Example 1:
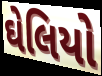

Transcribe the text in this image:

ઘેલિયો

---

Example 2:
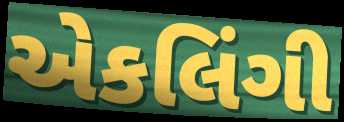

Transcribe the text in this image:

એકલિંગી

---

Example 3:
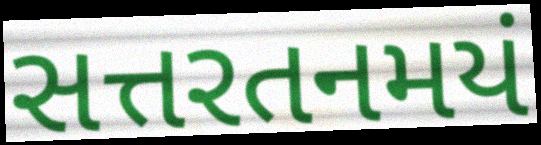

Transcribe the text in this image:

સત્તરતનમયં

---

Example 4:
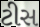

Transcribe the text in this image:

ટીસ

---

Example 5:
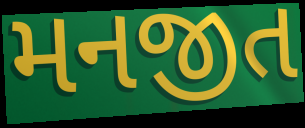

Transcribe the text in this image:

મનજીત